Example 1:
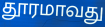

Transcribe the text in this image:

தூரமாவது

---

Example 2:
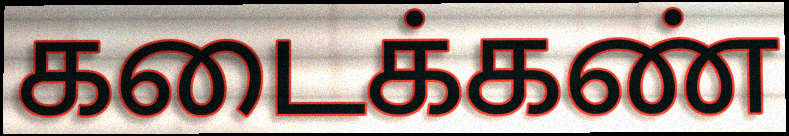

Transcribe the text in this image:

கடைக்கண்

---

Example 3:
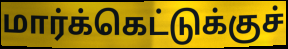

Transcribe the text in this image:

மார்க்கெட்டுக்குச்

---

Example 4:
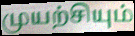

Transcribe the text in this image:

முயற்சியும்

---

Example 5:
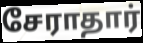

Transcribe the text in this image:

சேராதார்